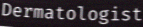
Dermatologist